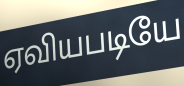
ஏவியபடியே